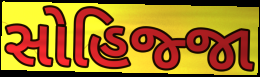
સોહિજ્જા